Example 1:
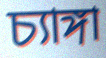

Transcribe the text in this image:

চ্যাঙ্গা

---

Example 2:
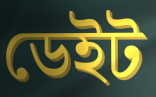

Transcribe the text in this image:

ডেইট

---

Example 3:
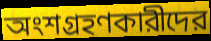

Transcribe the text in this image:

অংশগ্রহণকারীদের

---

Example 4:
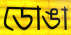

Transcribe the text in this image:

ডোঙা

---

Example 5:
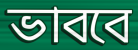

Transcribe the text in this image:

ভাববে